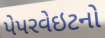
પેપરવેઇટનો